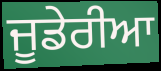
ਜੂਡੇਰੀਆ